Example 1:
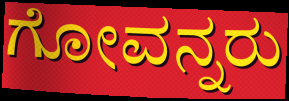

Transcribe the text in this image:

ಗೋವನ್ನರು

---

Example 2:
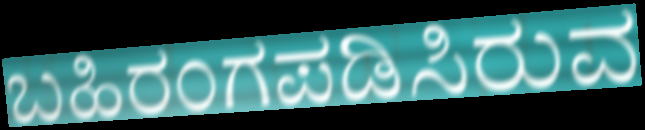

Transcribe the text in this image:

ಬಹಿರಂಗಪಡಿಸಿರುವ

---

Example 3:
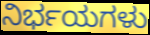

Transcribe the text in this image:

ನಿರ್ಭಯಗಳು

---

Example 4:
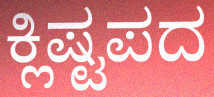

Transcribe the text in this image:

ಕ್ಲಿಷ್ಟಪದ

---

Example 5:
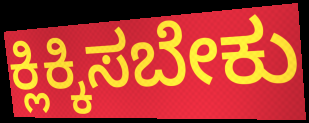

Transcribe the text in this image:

ಕ್ಲಿಕ್ಕಿಸಬೇಕು